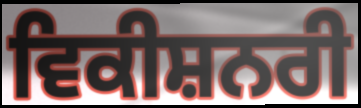
ਵਿਕੀਸ਼ਨਰੀ